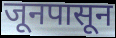
जूनपासून